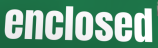
enclosed